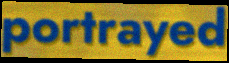
portrayed